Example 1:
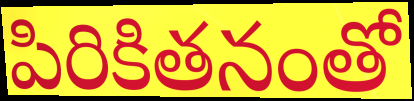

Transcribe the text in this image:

పిరికితనంతో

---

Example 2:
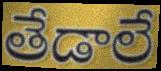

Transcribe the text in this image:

తేడాలే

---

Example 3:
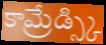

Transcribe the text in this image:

కామ్రేడ్స్కి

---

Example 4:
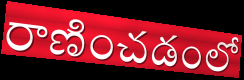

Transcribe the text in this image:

రాణించడంలో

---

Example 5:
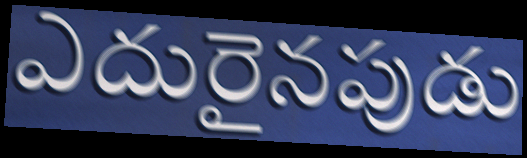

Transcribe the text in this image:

ఎదురైనపుడు